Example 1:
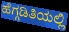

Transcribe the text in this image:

ಹೆಗ್ಗಡಿತಿಯಲ್ಲಿ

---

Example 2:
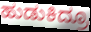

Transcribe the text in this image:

ಹುಡುಕಿದ್ರೂ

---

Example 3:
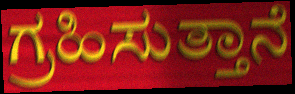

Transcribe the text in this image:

ಗ್ರಹಿಸುತ್ತಾನೆ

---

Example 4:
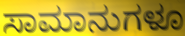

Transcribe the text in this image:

ಸಾಮಾನುಗಳೂ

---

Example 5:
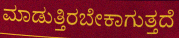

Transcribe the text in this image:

ಮಾಡುತ್ತಿರಬೇಕಾಗುತ್ತದೆ